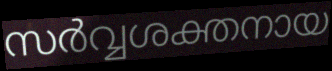
സർവ്വശക്തനായ